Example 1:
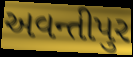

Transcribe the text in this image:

અવન્તીપુર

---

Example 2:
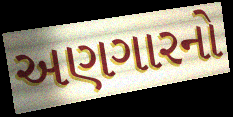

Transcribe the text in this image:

અણગારનો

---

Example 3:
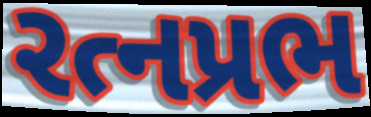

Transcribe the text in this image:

રત્નપ્રભ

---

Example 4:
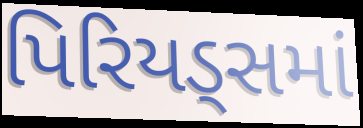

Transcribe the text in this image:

પિરિયડ્સમાં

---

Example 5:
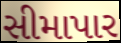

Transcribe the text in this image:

સીમાપાર